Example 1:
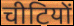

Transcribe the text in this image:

चीटियों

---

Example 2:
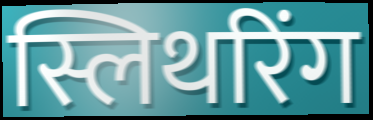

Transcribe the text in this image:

स्लिथरिंग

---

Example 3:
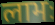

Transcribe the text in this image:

लाभः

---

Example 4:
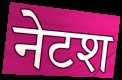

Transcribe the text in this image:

नेटश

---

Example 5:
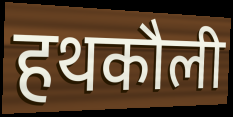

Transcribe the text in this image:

हथकौली